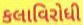
કલાવિરોધી